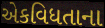
એકવિધતાના